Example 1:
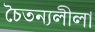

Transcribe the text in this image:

চৈতন্যলীলা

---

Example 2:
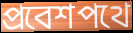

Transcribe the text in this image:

প্রবেশপথে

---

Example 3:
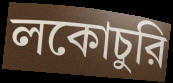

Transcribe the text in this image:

লকোচুরি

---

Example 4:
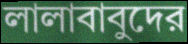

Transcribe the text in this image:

লালাবাবুদের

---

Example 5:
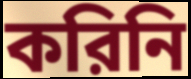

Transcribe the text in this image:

করিনি